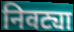
निवट्या